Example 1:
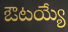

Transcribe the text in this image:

ఔటయ్యే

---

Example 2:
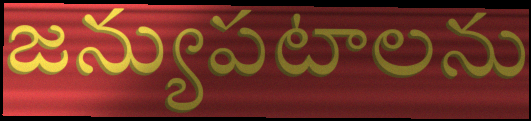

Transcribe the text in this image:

జన్యుపటాలను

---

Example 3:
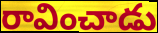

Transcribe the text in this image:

రావించాడు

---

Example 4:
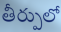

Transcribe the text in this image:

తీర్పులో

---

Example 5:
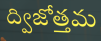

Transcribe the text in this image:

ద్విజోత్తమ